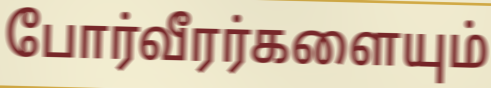
போர்வீரர்களையும்